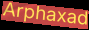
Arphaxad